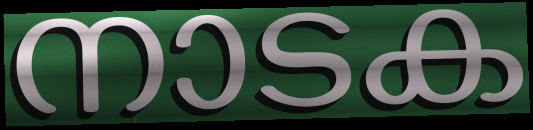
നാടക